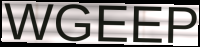
WGEEP